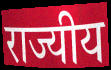
राज्‍यीय